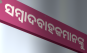
ସମ୍ବାଦବାହକମାନଙ୍କୁ